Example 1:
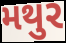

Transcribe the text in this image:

મથુર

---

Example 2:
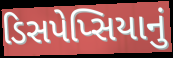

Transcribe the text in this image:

ડિસપેપ્સિયાનું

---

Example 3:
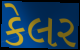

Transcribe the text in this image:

કેલર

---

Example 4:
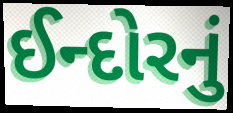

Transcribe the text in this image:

ઈન્દોરનું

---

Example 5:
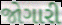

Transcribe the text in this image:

જોગારી